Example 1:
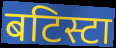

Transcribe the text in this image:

बटिस्टा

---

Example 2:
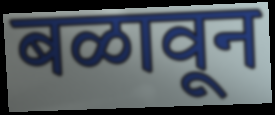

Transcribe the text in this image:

बळावून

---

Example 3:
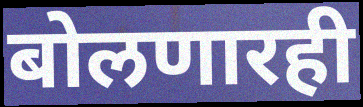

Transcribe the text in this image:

बोलणारही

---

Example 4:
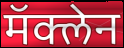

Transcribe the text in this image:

मॅक्लेन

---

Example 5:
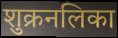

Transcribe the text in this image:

शुक्रनलिका